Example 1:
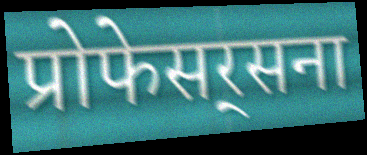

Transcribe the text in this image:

प्रोफेसर्सना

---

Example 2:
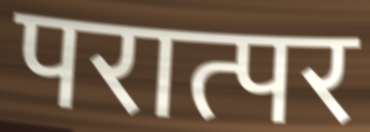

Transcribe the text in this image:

परात्पर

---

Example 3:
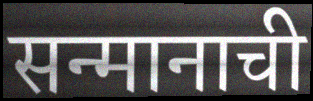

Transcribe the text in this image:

सन्मानाची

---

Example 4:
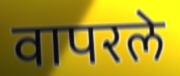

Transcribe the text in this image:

वापरले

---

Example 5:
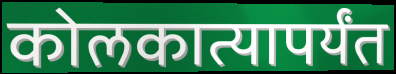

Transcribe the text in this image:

कोलकात्यापर्यंत